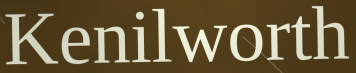
Kenilworth